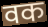
वक